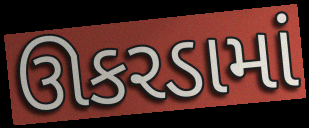
ઊકરડામાં